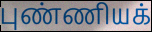
புண்ணியக்